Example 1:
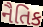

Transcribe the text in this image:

નૈતિક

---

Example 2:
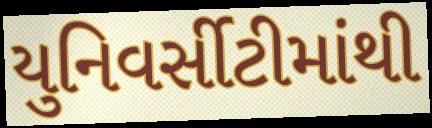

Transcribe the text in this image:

યુનિવર્સીટીમાંથી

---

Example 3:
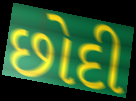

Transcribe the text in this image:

છોદી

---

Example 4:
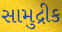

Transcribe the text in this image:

સામુદ્રીક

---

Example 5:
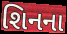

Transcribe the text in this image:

શિનના